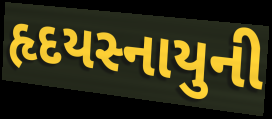
હૃદયસ્નાયુની